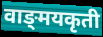
वाङ्‌मयकृती